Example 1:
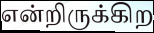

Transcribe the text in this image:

என்றிருக்கிற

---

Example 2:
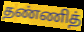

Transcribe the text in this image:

தண்ணித்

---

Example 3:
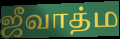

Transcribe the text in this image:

ஜீவாத்ம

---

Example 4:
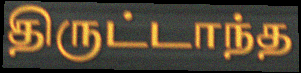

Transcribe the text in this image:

திருட்டாந்த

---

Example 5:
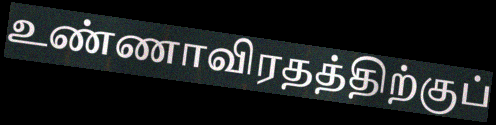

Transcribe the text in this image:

உண்ணாவிரதத்திற்குப்